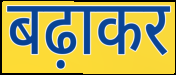
बढ़ाकर